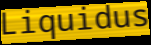
Liquidus